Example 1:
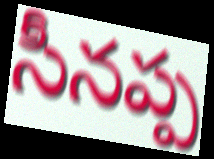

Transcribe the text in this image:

సీనప్ప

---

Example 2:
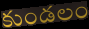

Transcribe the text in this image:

కుండలం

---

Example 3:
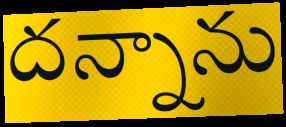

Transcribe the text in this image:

దన్నాను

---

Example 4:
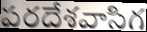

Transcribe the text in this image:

పరదేశవాసిగ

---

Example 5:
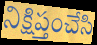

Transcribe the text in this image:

నిక్షిప్తంచేసి